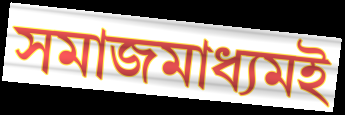
সমাজমাধ্যমই